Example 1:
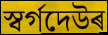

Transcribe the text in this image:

স্বৰ্গদেউৰ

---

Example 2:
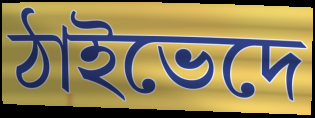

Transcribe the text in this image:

ঠাইভেদে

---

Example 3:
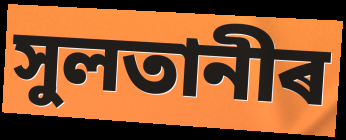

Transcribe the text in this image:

সুলতানীৰ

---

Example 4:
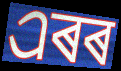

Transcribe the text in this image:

এৰৰ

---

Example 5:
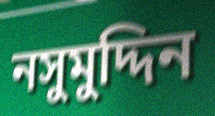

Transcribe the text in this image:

নসুমুদ্দিন